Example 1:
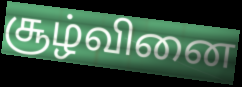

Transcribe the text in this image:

சூழ்வினை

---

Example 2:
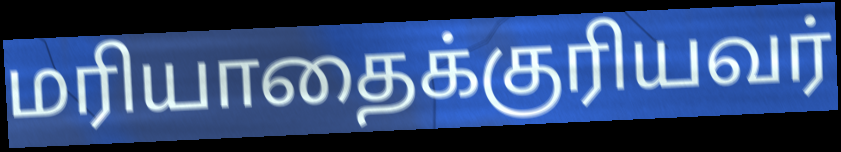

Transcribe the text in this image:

மரியாதைக்குரியவர்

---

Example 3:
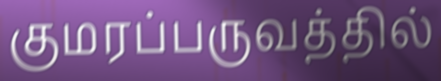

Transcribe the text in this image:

குமரப்பருவத்தில்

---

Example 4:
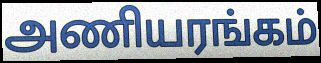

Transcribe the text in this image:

அணியரங்கம்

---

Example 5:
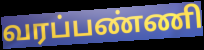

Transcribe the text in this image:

வரப்பண்ணி